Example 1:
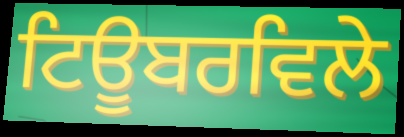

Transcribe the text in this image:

ਟਿਊਬਰਵਿਲੇ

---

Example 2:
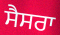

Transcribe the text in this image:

ਸੈਸਰਾ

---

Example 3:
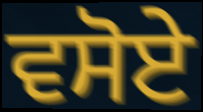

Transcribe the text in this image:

ਵਸੋਏ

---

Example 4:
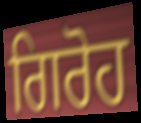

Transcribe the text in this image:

ਗਿਰੋਹ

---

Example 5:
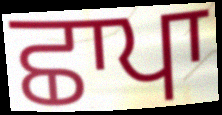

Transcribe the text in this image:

ਛਾਪਾ